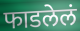
फाडलेलं